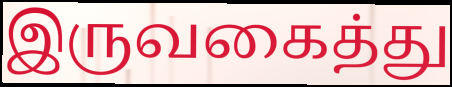
இருவகைத்து